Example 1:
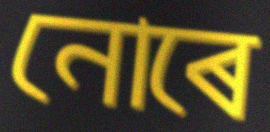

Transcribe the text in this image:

নোৰে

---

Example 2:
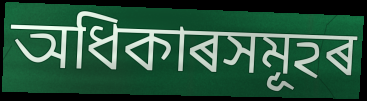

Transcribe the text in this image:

অধিকাৰসমূহৰ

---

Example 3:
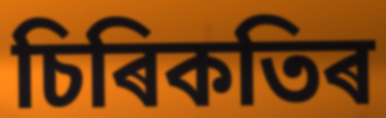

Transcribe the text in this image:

চিৰিকতিৰ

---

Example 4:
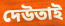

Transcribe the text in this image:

দেউতাই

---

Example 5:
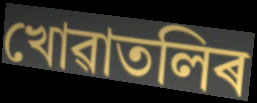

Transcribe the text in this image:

খোৱাতলিৰ